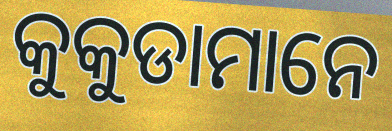
କୁକୁଡାମାନେ